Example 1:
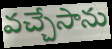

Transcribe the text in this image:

వచ్చేసాను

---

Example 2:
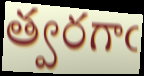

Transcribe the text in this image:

త్వరగాఁ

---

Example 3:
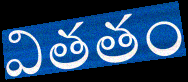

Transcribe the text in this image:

వితతం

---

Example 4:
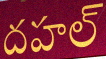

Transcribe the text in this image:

దహల్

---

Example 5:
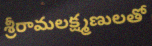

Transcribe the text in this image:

శ్రీరామలక్ష్మణులతో